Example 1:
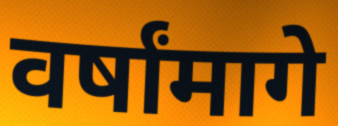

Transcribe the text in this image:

वर्षांमागे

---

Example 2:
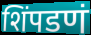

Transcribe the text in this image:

शिंपडणं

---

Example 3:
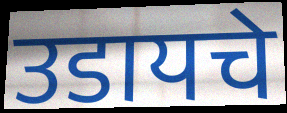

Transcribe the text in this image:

उडायचे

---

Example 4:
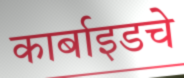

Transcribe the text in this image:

कार्बाइडचे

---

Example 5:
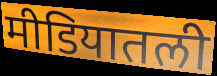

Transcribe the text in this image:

मीडियातली